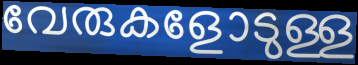
വേരുകളോടുള്ള